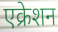
एक्रेशन